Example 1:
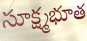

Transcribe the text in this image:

సూక్ష్మభూత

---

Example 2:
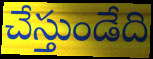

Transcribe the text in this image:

చేస్తుండేది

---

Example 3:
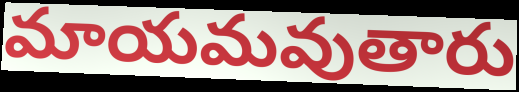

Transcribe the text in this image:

మాయమవుతారు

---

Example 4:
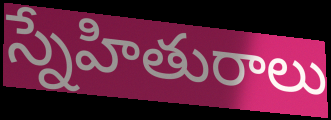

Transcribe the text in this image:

స్నేహితురాలు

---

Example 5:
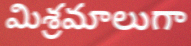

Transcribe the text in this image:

మిశ్రమాలుగా